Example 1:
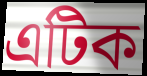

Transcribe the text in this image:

এটিক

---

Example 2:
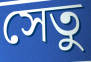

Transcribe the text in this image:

সেতু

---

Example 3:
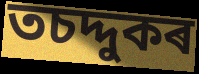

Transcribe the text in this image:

তচদ্দুকৰ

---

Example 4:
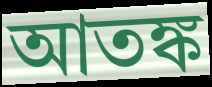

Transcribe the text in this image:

আতঙ্ক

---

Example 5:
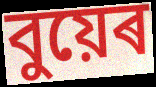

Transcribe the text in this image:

বুয়েৰ